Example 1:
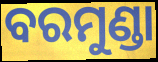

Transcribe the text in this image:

ବରମୁଣ୍ଡା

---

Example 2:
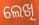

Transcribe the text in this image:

ଲେଖି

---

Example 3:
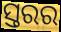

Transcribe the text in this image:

ସ୍ତରର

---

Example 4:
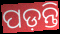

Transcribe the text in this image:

ପଡ଼ନ୍ତି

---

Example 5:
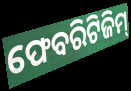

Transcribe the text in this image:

ଫେବରିଟିଜିମ୍